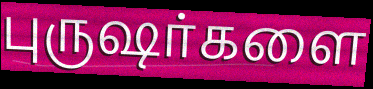
புருஷர்களை